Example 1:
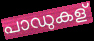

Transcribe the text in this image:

പാഡുകള്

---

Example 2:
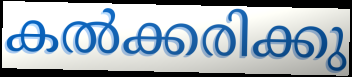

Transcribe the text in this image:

കൽക്കരിക്കു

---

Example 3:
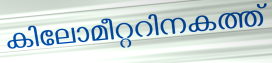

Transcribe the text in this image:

കിലോമീറ്ററിനകത്ത്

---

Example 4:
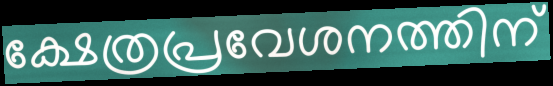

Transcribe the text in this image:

ക്ഷേത്രപ്രവേശനത്തിന്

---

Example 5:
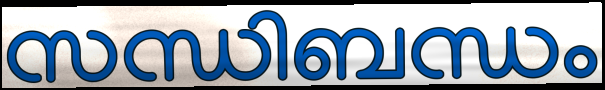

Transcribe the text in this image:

സന്ധിബന്ധം